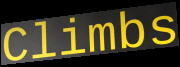
Climbs